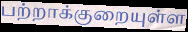
பற்றாக்குறையுள்ள